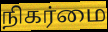
நிகர்மை